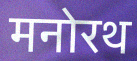
मनोरथ